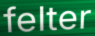
felter